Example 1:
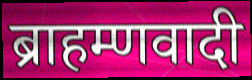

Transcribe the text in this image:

ब्राहम्णवादी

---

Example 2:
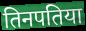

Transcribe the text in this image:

तिनपतिया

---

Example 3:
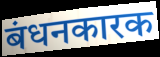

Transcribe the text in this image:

बंधनकारक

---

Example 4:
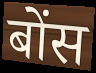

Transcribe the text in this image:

बोंस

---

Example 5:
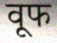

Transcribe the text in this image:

वूफ